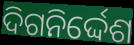
ଦିଗନିର୍ଦ୍ଦେଶ